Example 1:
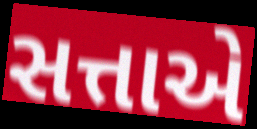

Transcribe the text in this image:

સત્તાએ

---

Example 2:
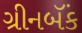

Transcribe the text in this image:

ગ્રીનબૅંક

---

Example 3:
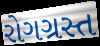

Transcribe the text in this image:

રોગગ્રસ્ત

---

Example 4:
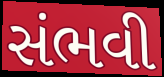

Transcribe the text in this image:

સંભવી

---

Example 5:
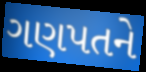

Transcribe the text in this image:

ગણપતને